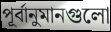
পূর্বানুমানগুলো